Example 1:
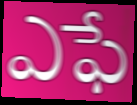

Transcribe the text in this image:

ఎఫే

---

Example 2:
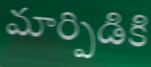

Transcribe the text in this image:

మార్పిడికి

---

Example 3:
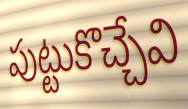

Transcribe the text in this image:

పుట్టుకొచ్చేవి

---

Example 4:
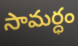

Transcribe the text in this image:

సామర్ధం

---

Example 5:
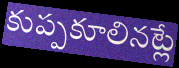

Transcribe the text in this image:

కుప్పకూలినట్లే